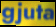
gjuta